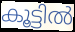
കൂട്ടിൽ